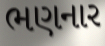
ભણનાર